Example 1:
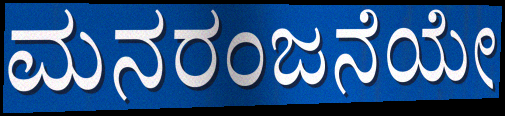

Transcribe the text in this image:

ಮನರಂಜನೆಯೇ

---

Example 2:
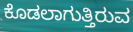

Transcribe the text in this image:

ಕೊಡಲಾಗುತ್ತಿರುವ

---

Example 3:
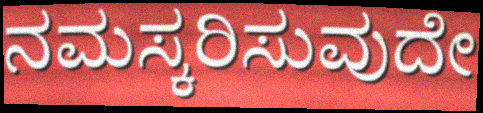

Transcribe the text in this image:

ನಮಸ್ಕರಿಸುವುದೇ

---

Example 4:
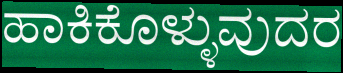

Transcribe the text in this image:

ಹಾಕಿಕೊಳ್ಳುವುದರ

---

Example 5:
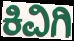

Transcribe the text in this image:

ಕಿವಿಗಿ